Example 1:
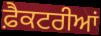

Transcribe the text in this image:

ਫ਼ੈਕਟਰੀਆਂ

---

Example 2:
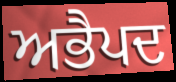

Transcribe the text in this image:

ਅਭੈਪਦ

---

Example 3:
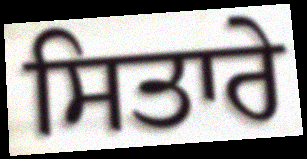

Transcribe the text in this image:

ਸਿਤਾਰੇ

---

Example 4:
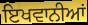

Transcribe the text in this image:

ਇਖਵਾਨੀਆਂ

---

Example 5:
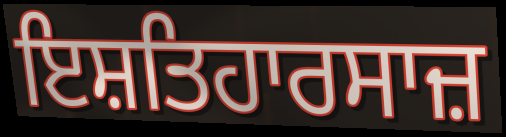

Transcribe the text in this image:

ਇਸ਼ਤਿਹਾਰਸਾਜ਼